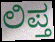
ಲಿಪ್ತ